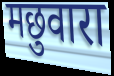
मछुवारा